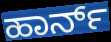
ಹಾರ್ನ್